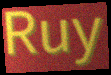
Ruy